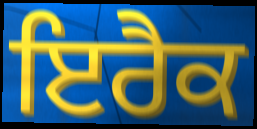
ਇਰੈਕ